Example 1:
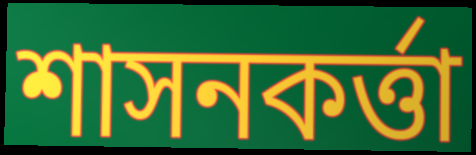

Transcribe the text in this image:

শাসনকৰ্ত্তা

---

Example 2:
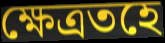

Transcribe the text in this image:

ক্ষেত্ৰতহে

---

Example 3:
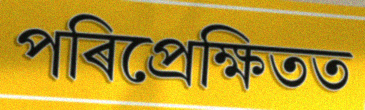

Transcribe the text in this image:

পৰিপ্ৰেক্ষিতত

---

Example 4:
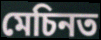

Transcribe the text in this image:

মেচিনত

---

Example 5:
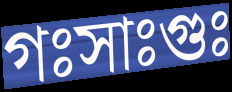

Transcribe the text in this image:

গঃসাঃগুঃ